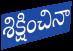
శిక్షించినా